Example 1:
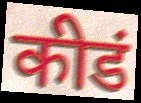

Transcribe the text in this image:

कीडं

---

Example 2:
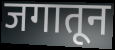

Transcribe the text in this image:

जगातून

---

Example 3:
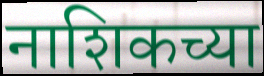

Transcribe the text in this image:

नाशिकच्या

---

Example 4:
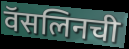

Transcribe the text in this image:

वॅसलिनची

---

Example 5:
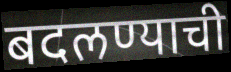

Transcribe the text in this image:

बदलण्याची